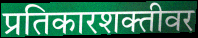
प्रतिकारशक्तीवर